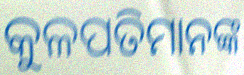
କୁଳପତିମାନଙ୍କ